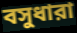
বসুধারা